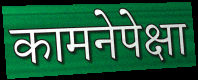
कामनेपेक्षा